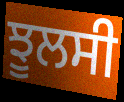
ਝੂਲਸੀ